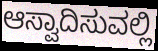
ಆಸ್ವಾದಿಸುವಲ್ಲಿ